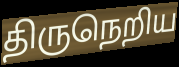
திருநெறிய